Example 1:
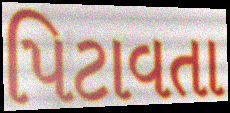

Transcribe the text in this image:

પિટાવતા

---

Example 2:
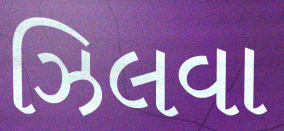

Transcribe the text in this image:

ઝિલવા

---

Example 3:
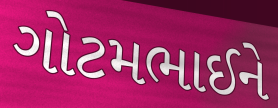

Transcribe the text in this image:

ગોટમભાઈને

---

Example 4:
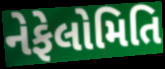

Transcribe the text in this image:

નેફેલોમિતિ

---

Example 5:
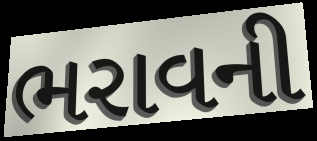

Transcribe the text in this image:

ભરાવની